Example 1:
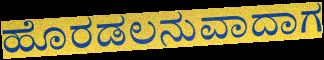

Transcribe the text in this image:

ಹೊರಡಲನುವಾದಾಗ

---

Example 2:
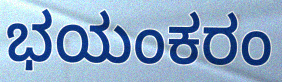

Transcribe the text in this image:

ಭಯಂಕರಂ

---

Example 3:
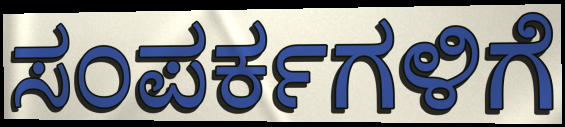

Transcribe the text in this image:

ಸಂಪರ್ಕಗಳಿಗೆ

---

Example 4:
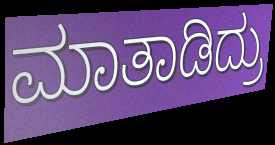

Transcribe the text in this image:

ಮಾತಾಡಿದ್ರು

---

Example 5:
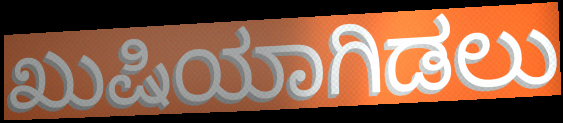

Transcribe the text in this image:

ಖುಷಿಯಾಗಿಡಲು